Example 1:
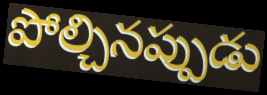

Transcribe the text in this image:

పోల్చినప్పుడు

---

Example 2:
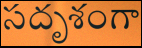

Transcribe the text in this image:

సదృశంగా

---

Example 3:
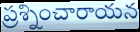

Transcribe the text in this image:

ప్రశ్నించారాయన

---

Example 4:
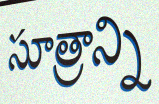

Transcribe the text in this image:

సూత్రాన్ని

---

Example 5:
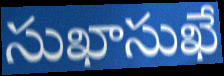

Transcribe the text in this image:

సుఖాసుఖే